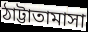
ঠাট্টাতামাসা